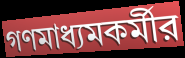
গণমাধ্যমকর্মীর